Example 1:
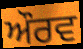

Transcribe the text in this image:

ਔਰਵ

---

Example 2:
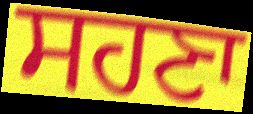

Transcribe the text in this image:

ਸਹਣਾ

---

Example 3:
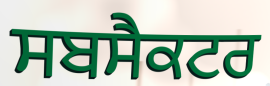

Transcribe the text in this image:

ਸਬਸੈਕਟਰ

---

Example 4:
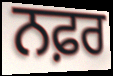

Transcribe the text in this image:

ਨਫ਼ਰ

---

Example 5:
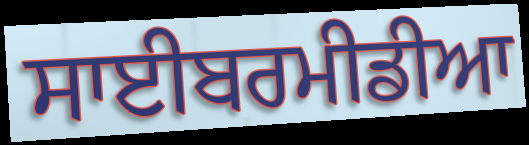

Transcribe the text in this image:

ਸਾਈਬਰਮੀਡੀਆ